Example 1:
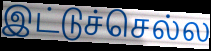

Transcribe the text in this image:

இட்டுச்செல்ல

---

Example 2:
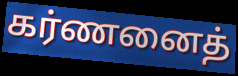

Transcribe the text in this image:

கர்ணனைத்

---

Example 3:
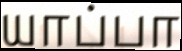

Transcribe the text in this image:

யாப்பா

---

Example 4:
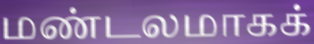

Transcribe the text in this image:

மண்டலமாகக்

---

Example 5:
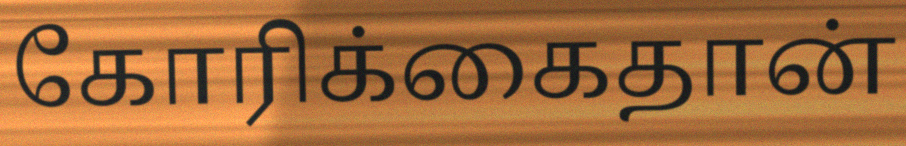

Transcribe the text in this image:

கோரிக்கைதான்